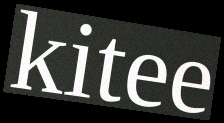
kitee